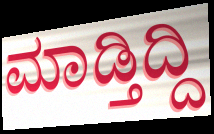
ಮಾಡ್ತಿದ್ದಿ